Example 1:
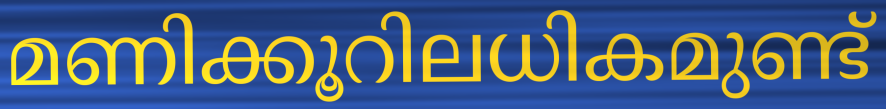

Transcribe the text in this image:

മണിക്കൂറിലധികമുണ്ട്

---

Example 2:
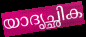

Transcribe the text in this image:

യാദൃച്ഛിക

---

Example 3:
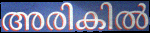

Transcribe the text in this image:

അരികിൽ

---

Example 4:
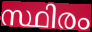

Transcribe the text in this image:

സ്ഥിരം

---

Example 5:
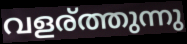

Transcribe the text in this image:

വളര്ത്തുന്നു